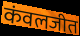
कंवलजीत